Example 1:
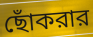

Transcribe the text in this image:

ছোঁকরার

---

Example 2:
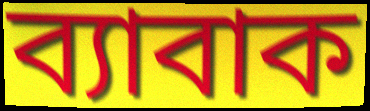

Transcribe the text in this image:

ব্যাবাক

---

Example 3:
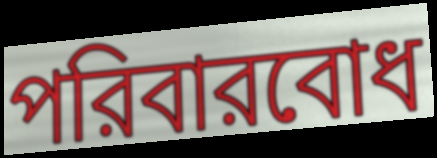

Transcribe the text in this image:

পরিবারবোধ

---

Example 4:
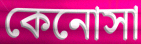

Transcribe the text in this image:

কেনোসা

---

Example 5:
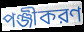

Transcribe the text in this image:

পঞ্জীকরণ